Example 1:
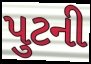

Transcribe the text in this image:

પુટની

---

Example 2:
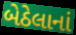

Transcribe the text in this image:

બેઠેલાનાં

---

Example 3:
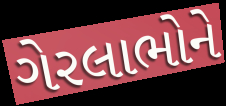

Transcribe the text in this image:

ગેરલાભોને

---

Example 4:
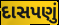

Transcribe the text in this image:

દાસપણું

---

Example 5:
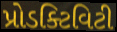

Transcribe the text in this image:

પ્રોડક્ટિવિટી